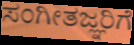
ಸಂಗೀತಜ್ಞರಿಗೆ